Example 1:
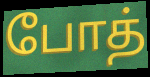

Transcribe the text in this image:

போத்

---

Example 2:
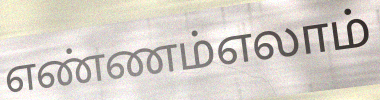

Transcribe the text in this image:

எண்ணம்எலாம்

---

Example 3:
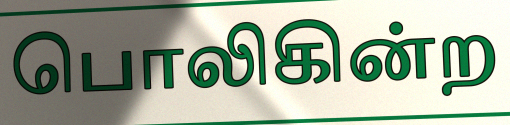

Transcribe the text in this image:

பொலிகின்ற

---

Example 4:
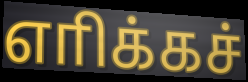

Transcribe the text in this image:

எரிக்கச்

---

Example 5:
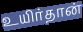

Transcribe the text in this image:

உயிர்தான்